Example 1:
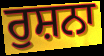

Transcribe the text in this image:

ਰੁਸ਼ਨਾ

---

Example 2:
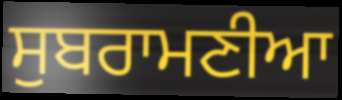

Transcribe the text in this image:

ਸੁਬਰਾਮਣੀਆ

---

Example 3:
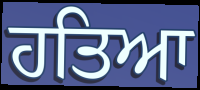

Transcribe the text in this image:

ਹਤਿਆ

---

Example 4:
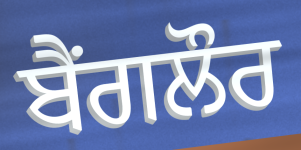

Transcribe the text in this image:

ਬੈਂਗਲੌਰ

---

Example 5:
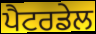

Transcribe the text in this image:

ਪੈਟਰਡੇਲ